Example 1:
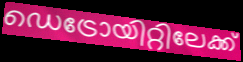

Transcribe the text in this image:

ഡെട്രോയിറ്റിലേക്ക്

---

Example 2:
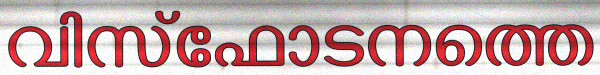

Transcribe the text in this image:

വിസ്ഫോടനത്തെ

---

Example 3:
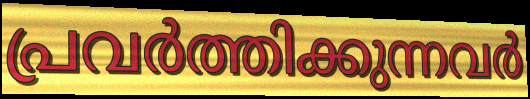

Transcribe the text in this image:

പ്രവർത്തിക്കുന്നവർ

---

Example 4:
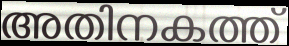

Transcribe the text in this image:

അതിനകത്ത്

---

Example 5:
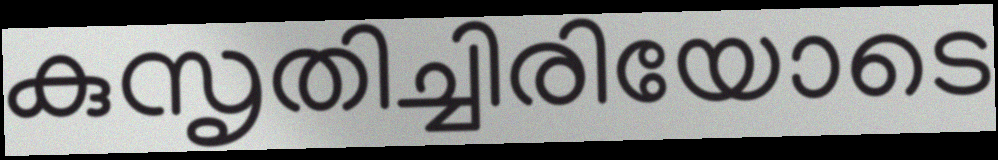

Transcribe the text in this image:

കുസൃതിച്ചിരിയോടെ